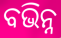
ବଭିନ୍ନ